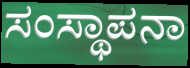
ಸಂಸ್ಥಾಪನಾ